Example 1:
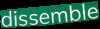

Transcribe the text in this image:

dissemble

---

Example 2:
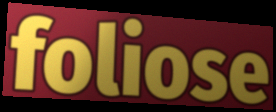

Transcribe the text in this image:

foliose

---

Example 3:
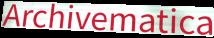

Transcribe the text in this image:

Archivematica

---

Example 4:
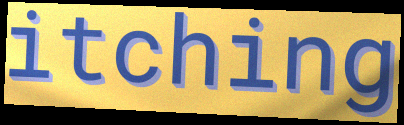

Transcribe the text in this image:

itching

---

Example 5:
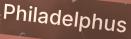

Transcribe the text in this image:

Philadelphus